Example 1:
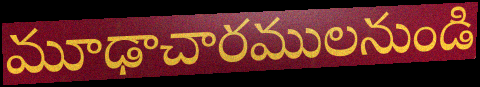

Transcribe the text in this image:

మూఢాచారములనుండి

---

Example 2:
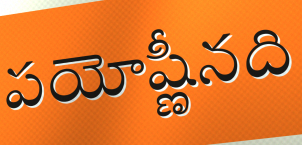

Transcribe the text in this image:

పయోష్ణీనది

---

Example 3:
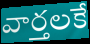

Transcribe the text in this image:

వార్తలకే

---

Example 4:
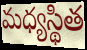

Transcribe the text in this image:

మధ్యస్థిత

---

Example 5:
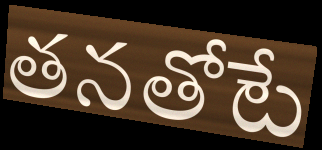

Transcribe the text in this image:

తనతోటే